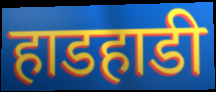
हाडहाडी